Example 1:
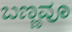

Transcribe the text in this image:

ಬಣ್ಣವೂ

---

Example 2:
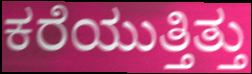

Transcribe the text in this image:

ಕರೆಯುತ್ತಿತ್ತು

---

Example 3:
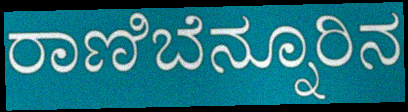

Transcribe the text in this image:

ರಾಣಿಬೆನ್ನೂರಿನ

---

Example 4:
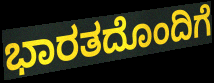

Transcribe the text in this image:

ಭಾರತದೊಂದಿಗೆ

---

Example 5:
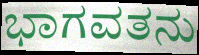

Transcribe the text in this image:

ಭಾಗವತನು